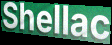
Shellac